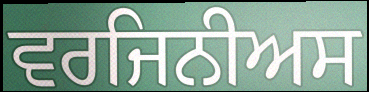
ਵਰਜਿਨੀਅਸ